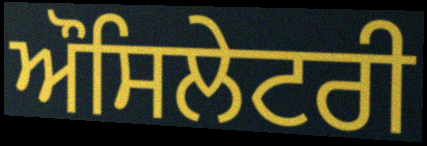
ਔਸਿਲੇਟਰੀ